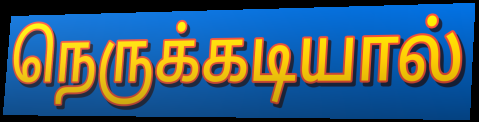
நெருக்கடியால்